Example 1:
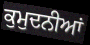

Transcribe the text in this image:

ਕੁਮੁਦਨੀਆਂ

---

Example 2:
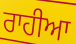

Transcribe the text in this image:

ਰਾਹੀਆ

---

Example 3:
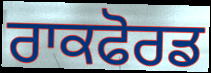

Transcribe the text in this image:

ਰਾਕਫੋਰਡ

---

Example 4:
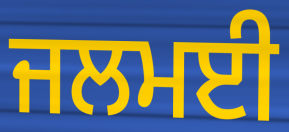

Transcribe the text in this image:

ਜਲਮਈ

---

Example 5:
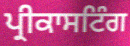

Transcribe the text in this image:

ਪ੍ਰੀਕਾਸਟਿੰਗ